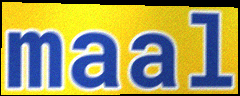
maal